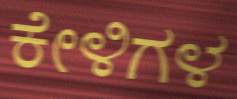
ಕೇಳಿಗಳ